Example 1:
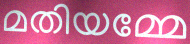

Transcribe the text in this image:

മതിയമ്മേ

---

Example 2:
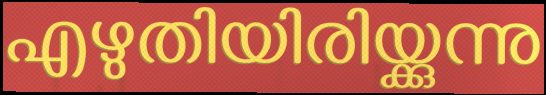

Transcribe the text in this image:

എഴുതിയിരിയ്ക്കുന്നു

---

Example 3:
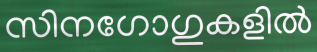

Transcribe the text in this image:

സിനഗോഗുകളിൽ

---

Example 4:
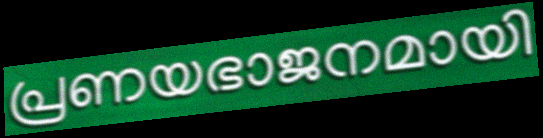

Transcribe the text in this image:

പ്രണയഭാജനമായി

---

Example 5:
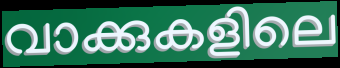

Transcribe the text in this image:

വാക്കുകളിലെ